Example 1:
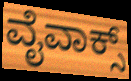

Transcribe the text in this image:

ವೈವಾಕ್ಸ್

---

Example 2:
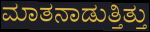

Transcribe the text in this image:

ಮಾತನಾಡುತ್ತಿತ್ತು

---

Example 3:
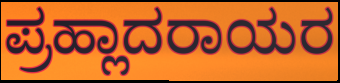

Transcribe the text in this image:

ಪ್ರಹ್ಲಾದರಾಯರ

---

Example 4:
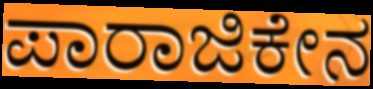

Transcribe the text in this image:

ಪಾರಾಜಿಕೇನ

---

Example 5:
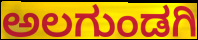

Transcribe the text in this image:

ಅಲಗುಂಡಗಿ